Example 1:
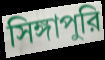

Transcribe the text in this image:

সিঙ্গাপুরি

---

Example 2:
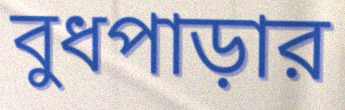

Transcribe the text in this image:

বুধপাড়ার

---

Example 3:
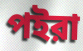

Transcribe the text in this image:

পইরা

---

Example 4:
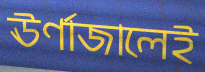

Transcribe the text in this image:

ঊর্ণাজালেই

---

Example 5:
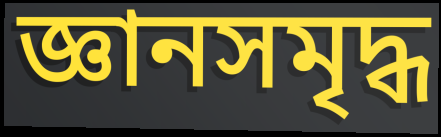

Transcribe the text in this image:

জ্ঞানসমৃদ্ধ